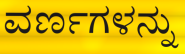
ವರ್ಣಗಳನ್ನು